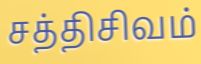
சத்திசிவம்